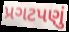
પ્રગટપણું